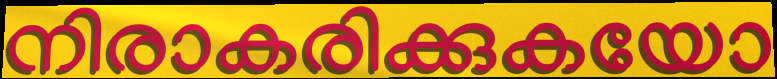
നിരാകരിക്കുകയോ